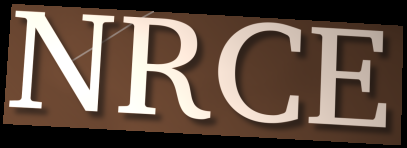
NRCE